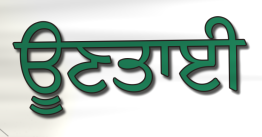
ਊਣਤਾਈ